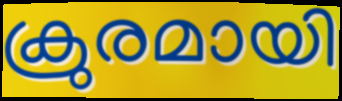
ക്രുരമായി